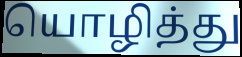
யொழித்து